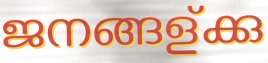
ജനങ്ങള്ക്കു